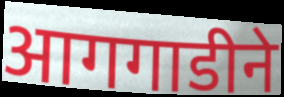
आगगाडीने